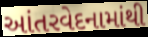
આંતરવેદનામાંથી